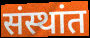
संस्थांत